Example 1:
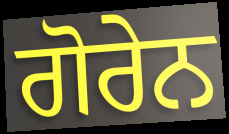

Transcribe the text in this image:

ਗੋਰੇਨ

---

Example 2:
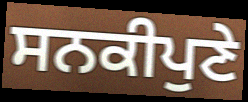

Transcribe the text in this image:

ਸਨਕੀਪੁਣੇ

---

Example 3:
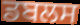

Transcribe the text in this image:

ਡਬਲਸ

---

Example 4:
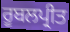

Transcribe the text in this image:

ਰੂਬਲਪ੍ਰੀਤ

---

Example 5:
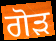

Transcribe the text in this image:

ਗੋੜ